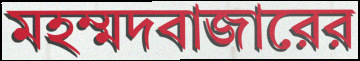
মহম্মদবাজারের